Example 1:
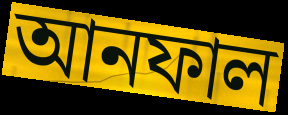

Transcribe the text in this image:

আনফাল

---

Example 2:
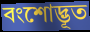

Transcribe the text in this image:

বংশোদ্ভূত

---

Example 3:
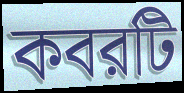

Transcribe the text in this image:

কবরটি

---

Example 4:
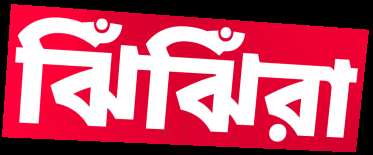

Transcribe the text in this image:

ঝিঁঝিঁরা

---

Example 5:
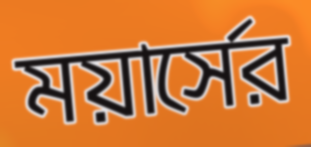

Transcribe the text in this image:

ময়ার্সের